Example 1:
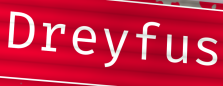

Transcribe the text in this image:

Dreyfus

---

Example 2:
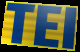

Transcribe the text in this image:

TEI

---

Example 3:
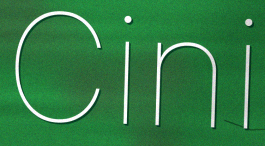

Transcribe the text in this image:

Cini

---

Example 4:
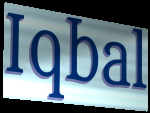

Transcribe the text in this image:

Iqbal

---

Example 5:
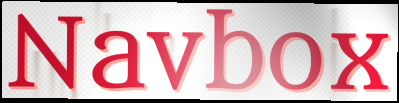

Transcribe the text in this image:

Navbox